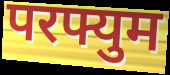
परफ्युम